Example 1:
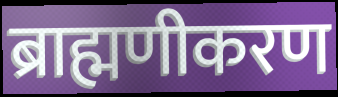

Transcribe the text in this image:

ब्राह्मणीकरण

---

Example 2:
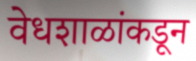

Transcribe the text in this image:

वेधशाळांकडून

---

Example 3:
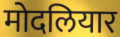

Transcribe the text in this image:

मोदलियार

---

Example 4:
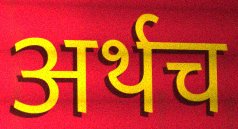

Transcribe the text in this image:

अर्थच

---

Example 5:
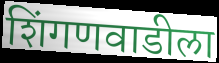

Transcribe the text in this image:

शिंगणवाडीला